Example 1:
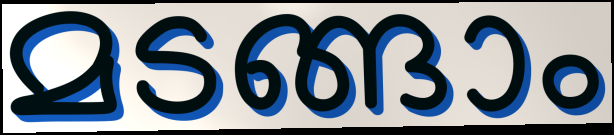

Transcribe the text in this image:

മടങ്ങാം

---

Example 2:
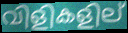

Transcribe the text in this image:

വിളികളില്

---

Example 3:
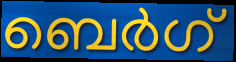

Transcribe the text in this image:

ബെർഗ്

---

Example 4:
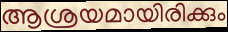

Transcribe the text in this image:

ആശ്രയമായിരിക്കും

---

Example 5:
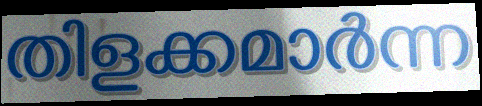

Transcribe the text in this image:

തിളക്കമാർന്ന